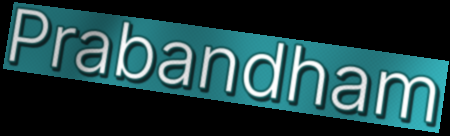
Prabandham